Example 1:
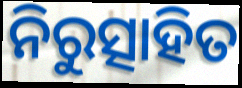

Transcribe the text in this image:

ନିରୁତ୍ସାହିତ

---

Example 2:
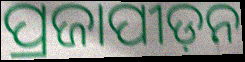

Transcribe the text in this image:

ପ୍ରଜାପୀଡ଼ନ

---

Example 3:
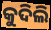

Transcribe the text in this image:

କୁଦିଲି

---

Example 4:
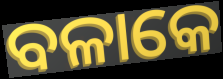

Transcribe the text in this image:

ବଳାକେ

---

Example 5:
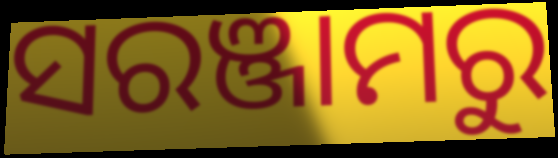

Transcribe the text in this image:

ସରଞ୍ଜାମରୁ